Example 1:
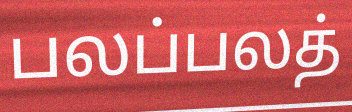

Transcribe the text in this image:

பலப்பலத்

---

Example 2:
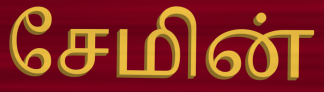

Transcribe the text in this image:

சேமின்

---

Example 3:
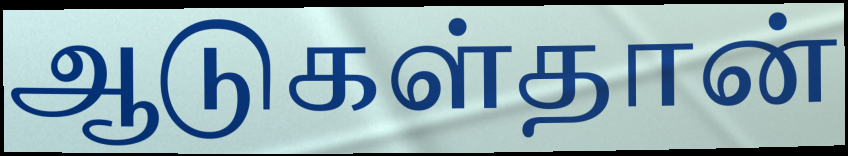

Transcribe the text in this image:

ஆடுகள்தான்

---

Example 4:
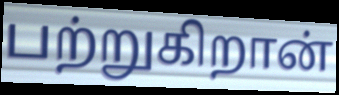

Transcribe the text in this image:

பற்றுகிறான்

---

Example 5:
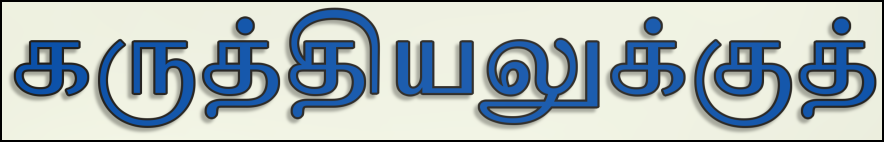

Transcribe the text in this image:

கருத்தியலுக்குத்